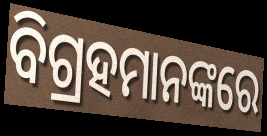
ବିଗ୍ରହମାନଙ୍କରେ